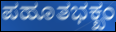
ಪಹೂತಭಕ್ಖಂ